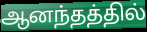
ஆனந்தத்தில்